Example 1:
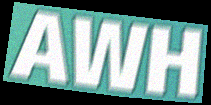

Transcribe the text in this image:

AWH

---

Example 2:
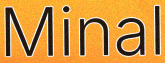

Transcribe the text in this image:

Minal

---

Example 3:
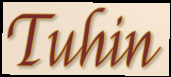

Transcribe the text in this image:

Tuhin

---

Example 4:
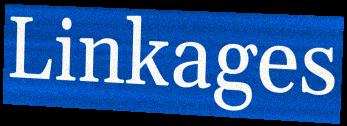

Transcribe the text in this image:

Linkages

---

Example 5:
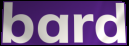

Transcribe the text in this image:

bard